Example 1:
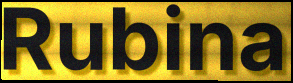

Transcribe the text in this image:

Rubina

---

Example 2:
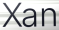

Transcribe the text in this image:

Xan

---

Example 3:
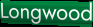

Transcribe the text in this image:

Longwood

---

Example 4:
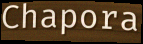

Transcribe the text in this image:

Chapora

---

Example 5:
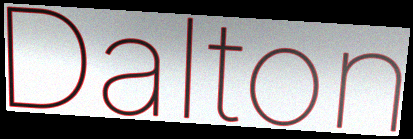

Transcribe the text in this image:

Dalton